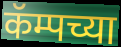
कॅम्पच्या